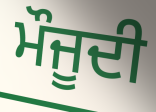
ਮੌਜੂਦੀ